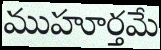
ముహూర్తమే